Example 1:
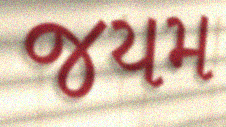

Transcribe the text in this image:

જયમ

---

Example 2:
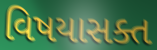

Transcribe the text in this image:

વિષયાસક્ત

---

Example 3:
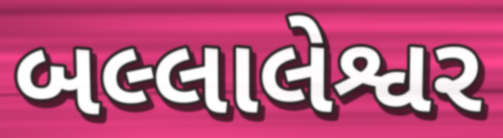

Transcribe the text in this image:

બલ્લાલેશ્વર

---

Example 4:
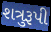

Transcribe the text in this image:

શત્રુરૂપી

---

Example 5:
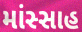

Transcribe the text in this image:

માંસ્સાહ